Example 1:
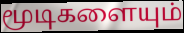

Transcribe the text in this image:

மூடிகளையும்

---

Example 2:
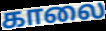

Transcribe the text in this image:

காலை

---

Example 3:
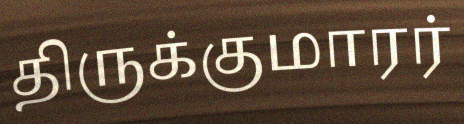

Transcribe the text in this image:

திருக்குமாரர்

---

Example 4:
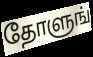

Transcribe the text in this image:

தோளுங்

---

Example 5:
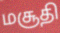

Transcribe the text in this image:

மசூதி